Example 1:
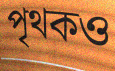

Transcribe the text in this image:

পৃথকও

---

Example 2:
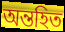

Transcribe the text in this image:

অন্তহিত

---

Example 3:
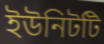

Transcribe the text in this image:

ইউনিটটি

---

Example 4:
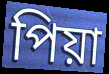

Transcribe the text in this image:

পিয়া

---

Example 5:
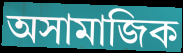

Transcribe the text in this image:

অসামাজিক